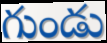
గుండు